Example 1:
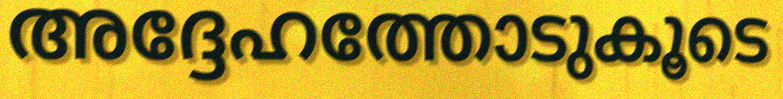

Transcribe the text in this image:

അദ്ദേഹത്തോടുകൂടെ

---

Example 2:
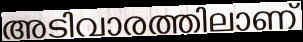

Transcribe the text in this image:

അടിവാരത്തിലാണ്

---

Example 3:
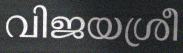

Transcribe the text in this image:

വിജയശ്രീ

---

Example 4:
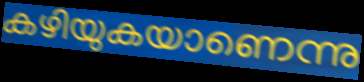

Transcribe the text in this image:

കഴിയുകയാണെന്നു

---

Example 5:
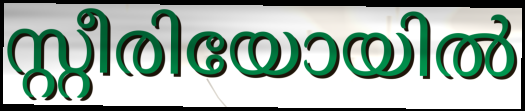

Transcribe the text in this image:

സ്റ്റീരിയോയിൽ